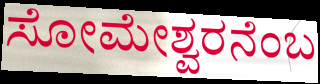
ಸೋಮೇಶ್ವರನೆಂಬ